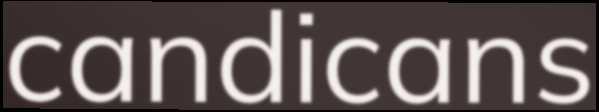
candicans